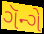
ગૅન્ગે